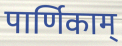
पार्णिकाम्